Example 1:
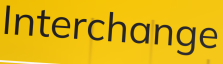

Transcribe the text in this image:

Interchange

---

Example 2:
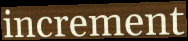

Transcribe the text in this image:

increment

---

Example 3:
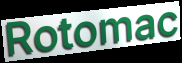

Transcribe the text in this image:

Rotomac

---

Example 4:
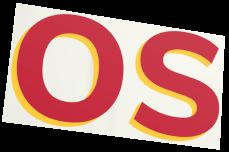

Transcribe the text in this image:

OS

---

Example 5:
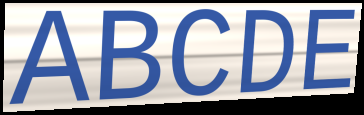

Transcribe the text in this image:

ABCDE